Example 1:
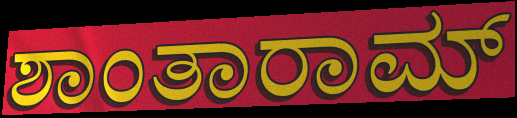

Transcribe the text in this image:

ಶಾಂತಾರಾಮ್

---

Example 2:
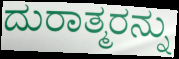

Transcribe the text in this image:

ದುರಾತ್ಮರನ್ನು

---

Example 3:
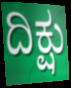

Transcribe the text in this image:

ದಿಕ್ಷು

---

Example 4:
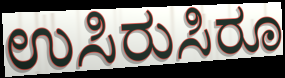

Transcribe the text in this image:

ಉಸಿರುಸಿರೂ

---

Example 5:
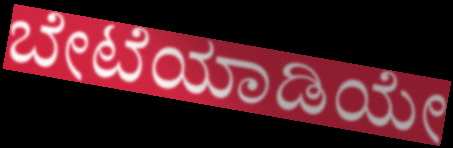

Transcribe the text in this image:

ಬೇಟೆಯಾಡಿಯೇ